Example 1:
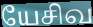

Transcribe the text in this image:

யேசிவ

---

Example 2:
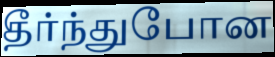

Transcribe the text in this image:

தீர்ந்துபோன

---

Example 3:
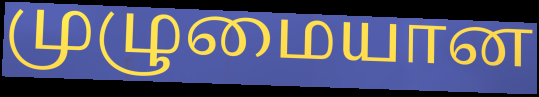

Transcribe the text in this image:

முழுமையான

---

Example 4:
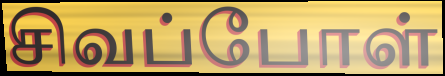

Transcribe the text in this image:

சிவப்போள்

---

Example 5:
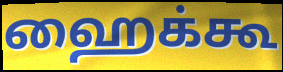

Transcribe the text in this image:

ஹைக்கூ